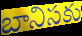
బానిసకు